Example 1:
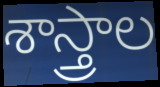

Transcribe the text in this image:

శాస్త్రాల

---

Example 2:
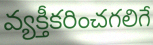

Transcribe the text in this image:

వ్యక్తీకరించగలిగే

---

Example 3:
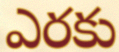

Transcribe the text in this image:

ఎరకు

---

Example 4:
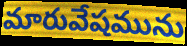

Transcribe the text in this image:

మారువేషమును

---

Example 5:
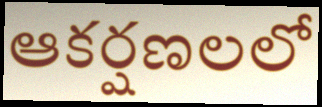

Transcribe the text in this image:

ఆకర్షణలలో